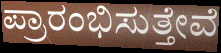
ಪ್ರಾರಂಭಿಸುತ್ತೇವೆ